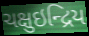
ચક્ષુઇન્દ્રિય